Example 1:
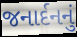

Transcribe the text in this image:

જનાર્દનનું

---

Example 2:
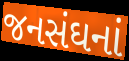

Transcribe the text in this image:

જનસંઘનાં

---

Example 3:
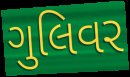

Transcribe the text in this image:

ગુલિવર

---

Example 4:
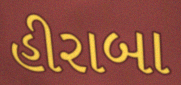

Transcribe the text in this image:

હીરાબા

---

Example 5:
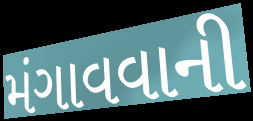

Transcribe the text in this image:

મંગાવવાની